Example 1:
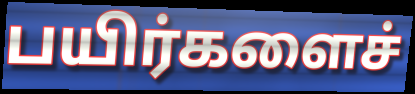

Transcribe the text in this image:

பயிர்களைச்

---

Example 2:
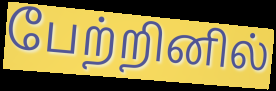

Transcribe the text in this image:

பேற்றினில்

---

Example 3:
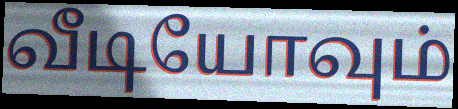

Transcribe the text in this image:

வீடியோவும்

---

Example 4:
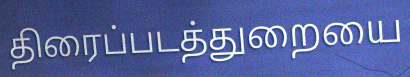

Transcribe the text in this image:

திரைப்படத்துறையை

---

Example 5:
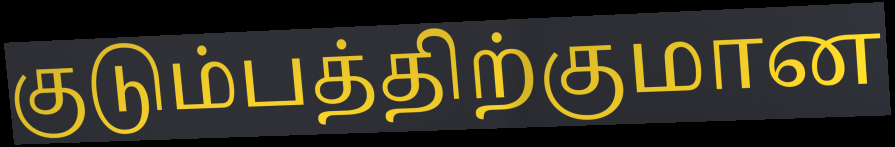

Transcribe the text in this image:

குடும்பத்திற்குமான